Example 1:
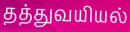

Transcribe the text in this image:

தத்துவயியல்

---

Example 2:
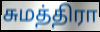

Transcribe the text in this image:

சுமத்திரா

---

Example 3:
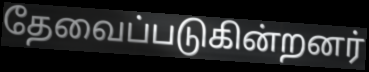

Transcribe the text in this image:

தேவைப்படுகின்றனர்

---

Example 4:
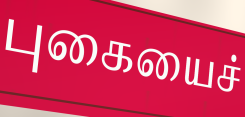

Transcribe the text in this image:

புகையைச்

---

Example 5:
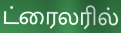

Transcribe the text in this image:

ட்ரைலரில்